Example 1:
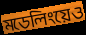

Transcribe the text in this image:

মডেলিংয়েও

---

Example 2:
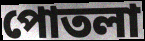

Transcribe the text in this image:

পোতলা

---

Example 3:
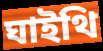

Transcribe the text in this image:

ঘাইথি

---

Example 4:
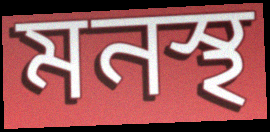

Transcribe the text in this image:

মনস্থ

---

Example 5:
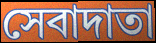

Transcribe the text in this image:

সেবাদাতা